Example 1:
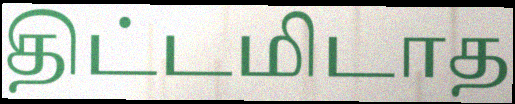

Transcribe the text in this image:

திட்டமிடாத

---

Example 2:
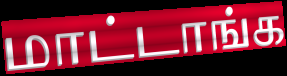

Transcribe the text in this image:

மாட்டாங்க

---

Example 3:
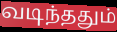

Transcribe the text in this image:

வடிந்ததும்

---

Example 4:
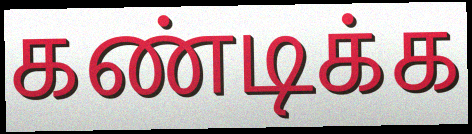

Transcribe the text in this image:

கண்டிக்க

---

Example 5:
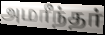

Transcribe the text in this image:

அமரீந்தர்